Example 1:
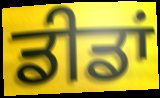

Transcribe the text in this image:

ਡੀਡਾਂ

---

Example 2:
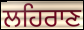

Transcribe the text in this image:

ਲਹਿਰਾਣ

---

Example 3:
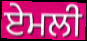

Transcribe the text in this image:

ਏਮਲੀ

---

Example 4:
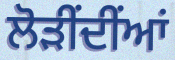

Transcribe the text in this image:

ਲੋੜੀਂਦੀਂਆਂ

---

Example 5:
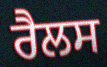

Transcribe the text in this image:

ਰੈਲਸ